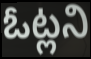
ఓట్లని